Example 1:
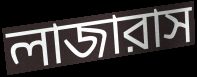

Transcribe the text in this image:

লাজারাস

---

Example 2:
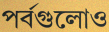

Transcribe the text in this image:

পর্বগুলোও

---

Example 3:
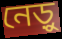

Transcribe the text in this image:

নেড়ু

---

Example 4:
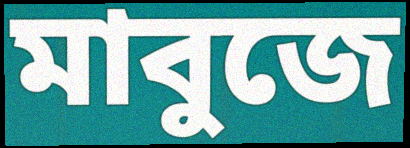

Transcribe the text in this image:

মাবুজে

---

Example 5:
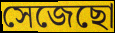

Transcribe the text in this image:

সেজেছো